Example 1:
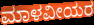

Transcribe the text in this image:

ಮಾಳವೀಯರ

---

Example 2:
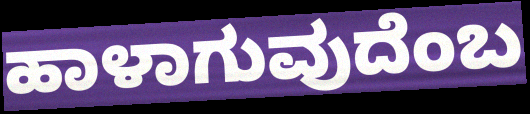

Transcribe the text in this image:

ಹಾಳಾಗುವುದೆಂಬ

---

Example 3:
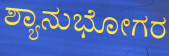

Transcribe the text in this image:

ಶ್ಯಾನುಭೋಗರ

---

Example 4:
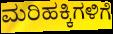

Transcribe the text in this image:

ಮರಿಹಕ್ಕಿಗಳಿಗೆ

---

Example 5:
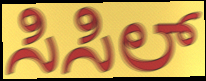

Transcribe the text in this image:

ಸಿಸಿಲ್